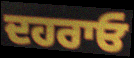
ਦਹਰਾਓ